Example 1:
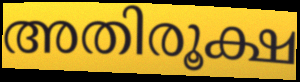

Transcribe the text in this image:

അതിരൂക്ഷ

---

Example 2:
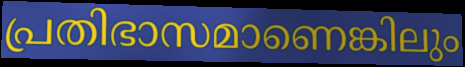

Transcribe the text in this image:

പ്രതിഭാസമാണെങ്കിലും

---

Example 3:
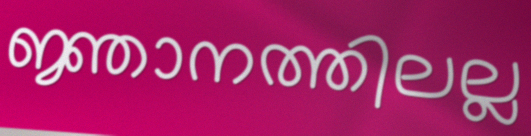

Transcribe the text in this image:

ജ്ഞാനത്തിലല്ല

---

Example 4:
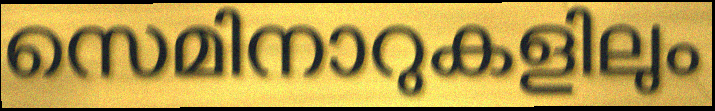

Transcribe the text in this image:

സെമിനാറുകളിലും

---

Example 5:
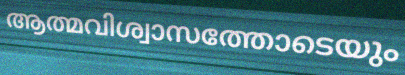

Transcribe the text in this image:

ആത്മവിശ്വാസത്തോടെയും